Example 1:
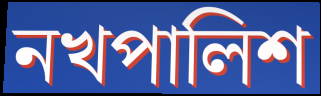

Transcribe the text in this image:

নখপালিশ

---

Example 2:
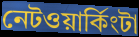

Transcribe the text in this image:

নেটওয়ার্কিংটা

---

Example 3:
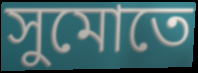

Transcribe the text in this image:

সুমোতে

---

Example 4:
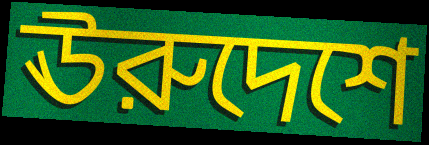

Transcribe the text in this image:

ঊরুদেশে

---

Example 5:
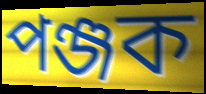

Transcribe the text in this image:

পঞ্জক